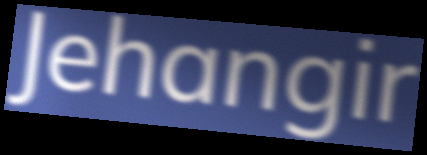
Jehangir